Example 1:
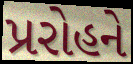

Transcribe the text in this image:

પ્રરોહને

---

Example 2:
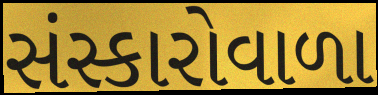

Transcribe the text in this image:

સંસ્કારોવાળા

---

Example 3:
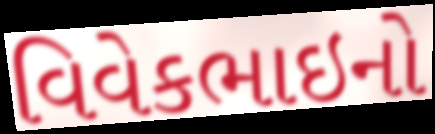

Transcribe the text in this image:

વિવેકભાઇનો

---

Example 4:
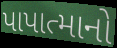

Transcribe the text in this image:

પાપાત્માનો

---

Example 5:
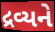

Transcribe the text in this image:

દ્રવ્યને